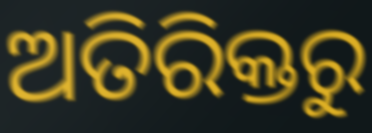
ଅତିରିକ୍ତରୁ